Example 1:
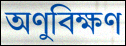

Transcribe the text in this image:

অণুবিক্ষণ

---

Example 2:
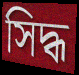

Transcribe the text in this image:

সিদ্ধ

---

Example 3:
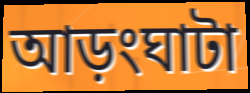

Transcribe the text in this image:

আড়ংঘাটা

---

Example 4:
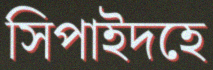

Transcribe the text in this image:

সিপাইদহে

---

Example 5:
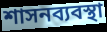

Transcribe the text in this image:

শাসনব্যবস্থা